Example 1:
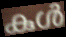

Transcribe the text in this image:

കുൾ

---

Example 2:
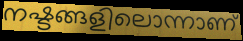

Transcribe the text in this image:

നഷ്ടങ്ങളിലൊന്നാണ്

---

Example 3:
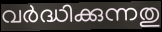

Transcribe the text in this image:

വർദ്ധിക്കുന്നതു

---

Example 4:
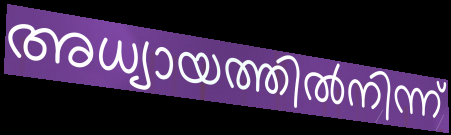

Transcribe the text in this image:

അധ്യായത്തിൽനിന്ന്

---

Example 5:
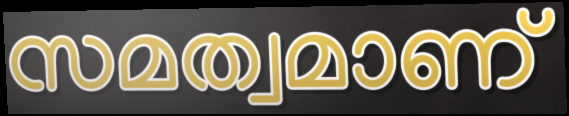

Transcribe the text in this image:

സമത്വമാണ്